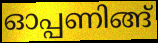
ഓപ്പണിങ്ങ്